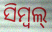
ସିମ୍ବଲ୍